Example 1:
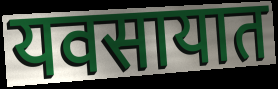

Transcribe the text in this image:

यवसायात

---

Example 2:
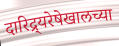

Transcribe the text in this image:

दारिद्र्यरेषेखालच्या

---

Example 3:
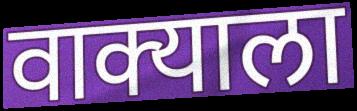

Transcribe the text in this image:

वाक्‍याला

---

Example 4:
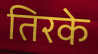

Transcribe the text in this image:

तिरके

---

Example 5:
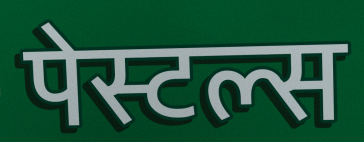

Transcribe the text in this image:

पेस्टल्स